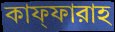
কাফ্ফারাহ